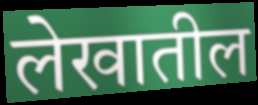
लेखातील